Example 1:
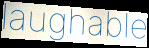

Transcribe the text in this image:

laughable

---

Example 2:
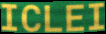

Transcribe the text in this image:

ICLEI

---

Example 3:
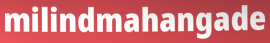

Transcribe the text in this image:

milindmahangade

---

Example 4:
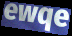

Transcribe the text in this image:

ewqe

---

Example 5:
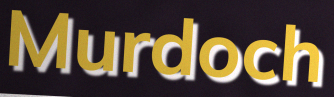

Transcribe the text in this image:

Murdoch